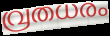
വ്രതധരം